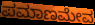
ಪಮಾಣಮೇವ